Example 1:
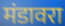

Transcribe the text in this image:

मंडावरा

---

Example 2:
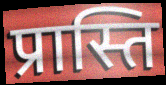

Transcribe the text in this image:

प्रास्ति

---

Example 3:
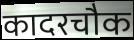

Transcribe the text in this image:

कादरचौक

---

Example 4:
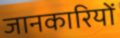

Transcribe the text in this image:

जानकारियों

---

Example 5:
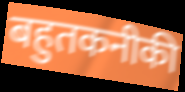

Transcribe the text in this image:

बहुतकनीकी